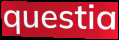
questia